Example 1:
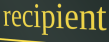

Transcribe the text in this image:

recipient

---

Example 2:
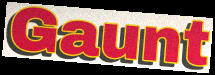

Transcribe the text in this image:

Gaunt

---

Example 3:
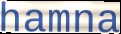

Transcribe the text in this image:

hamna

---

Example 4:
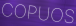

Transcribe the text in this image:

COPUOS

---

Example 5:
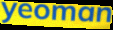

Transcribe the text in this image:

yeoman